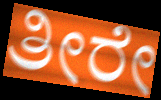
ತೀರೇ